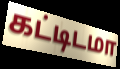
கட்டிடமா